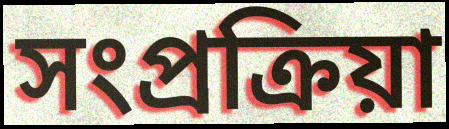
সংপ্ৰক্ৰিয়া